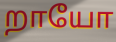
றாயோ